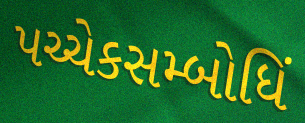
પચ્ચેકસમ્બોધિં